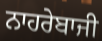
ਨਾਹਰੇਬਾਜੀ